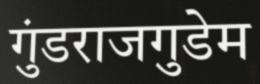
गुंडराजगुडेम